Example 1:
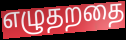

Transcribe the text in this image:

எழுதறதை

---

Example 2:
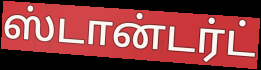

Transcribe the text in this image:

ஸ்டான்டர்ட்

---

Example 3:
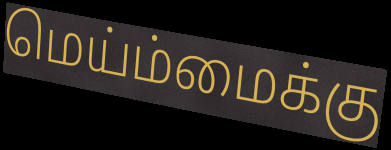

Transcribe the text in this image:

மெய்ம்மைக்கு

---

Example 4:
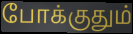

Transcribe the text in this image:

போக்குதும்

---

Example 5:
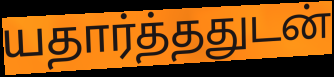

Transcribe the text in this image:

யதார்த்ததுடன்